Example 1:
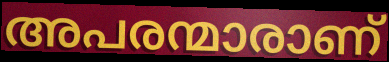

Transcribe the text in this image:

അപരന്മാരാണ്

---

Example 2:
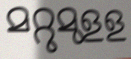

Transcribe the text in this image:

മറ്റുമുളള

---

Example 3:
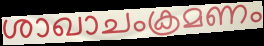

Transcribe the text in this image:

ശാഖാചംക്രമണം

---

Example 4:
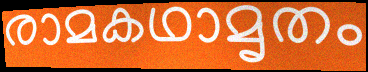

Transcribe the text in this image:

രാമകഥാമൃതം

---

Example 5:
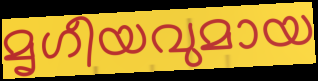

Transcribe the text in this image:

മൃഗീയവുമായ